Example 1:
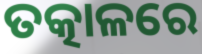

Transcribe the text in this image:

ତତ୍କାଳରେ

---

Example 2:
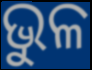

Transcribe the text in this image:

ଭୁଳ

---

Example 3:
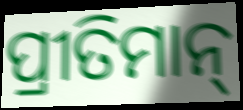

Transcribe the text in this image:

ପ୍ରୀତିମାନ୍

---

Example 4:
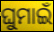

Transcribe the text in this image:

ଘୁମାଇଁ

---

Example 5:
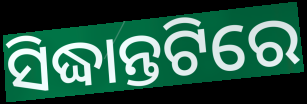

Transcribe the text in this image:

ସିଦ୍ଧାନ୍ତଟିରେ